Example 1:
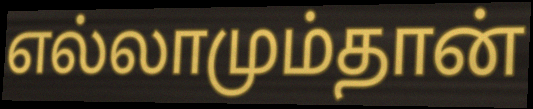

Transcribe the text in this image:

எல்லாமும்தான்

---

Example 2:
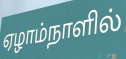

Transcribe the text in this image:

ஏழாம்நாளில்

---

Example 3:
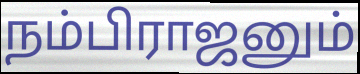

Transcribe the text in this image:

நம்பிராஜனும்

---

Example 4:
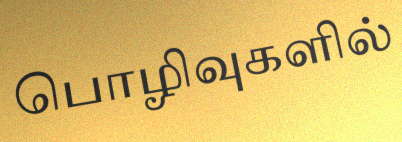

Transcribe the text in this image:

பொழிவுகளில்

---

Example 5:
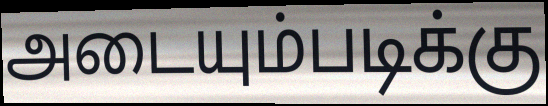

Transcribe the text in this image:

அடையும்படிக்கு